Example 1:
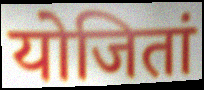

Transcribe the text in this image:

योजितां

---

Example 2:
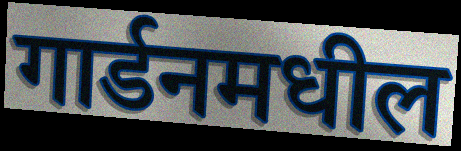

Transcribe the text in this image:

गार्डनमधील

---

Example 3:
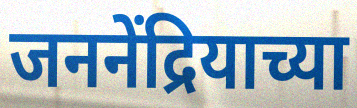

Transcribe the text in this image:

जननेंद्रियाच्या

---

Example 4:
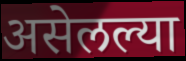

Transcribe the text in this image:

असेलल्या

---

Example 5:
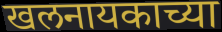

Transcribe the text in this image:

खलनायकाच्या